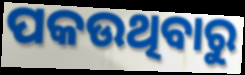
ପକଉଥିବାରୁ